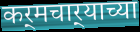
कर्मचार्याच्या